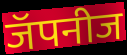
जॅपनीज